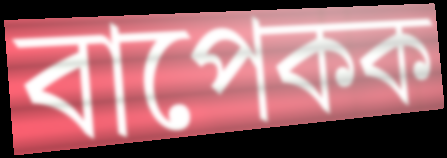
বাপেকক